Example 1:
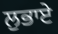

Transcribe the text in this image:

ਲੁਭਾਏ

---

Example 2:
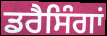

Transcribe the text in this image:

ਡਰੈਸਿੰਗਾਂ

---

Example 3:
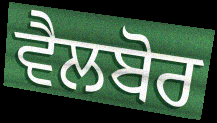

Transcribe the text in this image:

ਵੈਲਬੋਰ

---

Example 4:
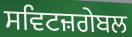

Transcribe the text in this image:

ਸਵਿਟਜ਼ਗੇਬਲ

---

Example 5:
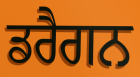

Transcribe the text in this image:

ਡਰੈਗਨ